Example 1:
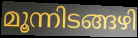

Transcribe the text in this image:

മൂന്നിടങ്ങഴി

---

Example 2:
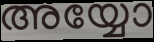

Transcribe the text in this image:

അയ്യോ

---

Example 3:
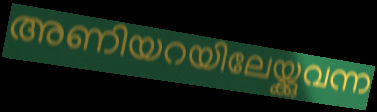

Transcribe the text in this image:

അണിയറയിലേയ്ക്കുവന്ന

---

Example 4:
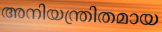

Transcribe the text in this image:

അനിയന്ത്രിതമായ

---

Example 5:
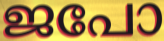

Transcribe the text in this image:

ജപോ